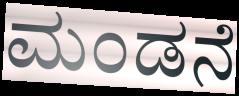
ಮಂಡನೆ